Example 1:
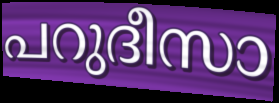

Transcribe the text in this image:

പറുദീസാ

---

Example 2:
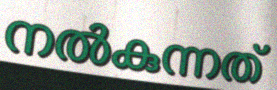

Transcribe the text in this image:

നൽകുന്നത്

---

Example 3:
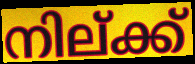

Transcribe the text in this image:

നില്ക്ക്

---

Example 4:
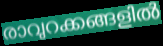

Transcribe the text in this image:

രാവുറക്കങ്ങളിൽ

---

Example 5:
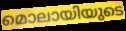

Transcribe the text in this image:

മൊലായിയുടെ